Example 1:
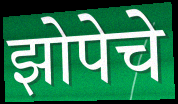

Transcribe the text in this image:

झोपेचे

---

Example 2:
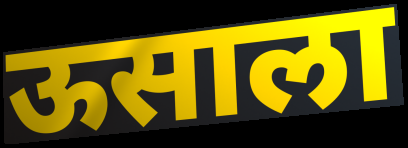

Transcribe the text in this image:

ऊसाला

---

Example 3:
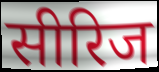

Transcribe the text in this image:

सीरिज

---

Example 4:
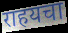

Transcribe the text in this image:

राहयचा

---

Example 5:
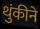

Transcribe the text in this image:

थुंकीने